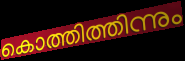
കൊത്തിത്തിന്നും